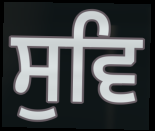
ਸੁਵਿ